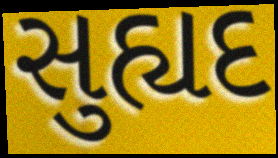
સુહ્યદ